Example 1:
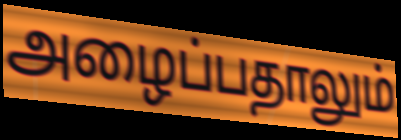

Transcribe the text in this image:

அழைப்பதாலும்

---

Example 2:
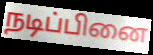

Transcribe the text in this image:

நடிப்பினை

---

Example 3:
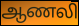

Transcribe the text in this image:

ஆணலி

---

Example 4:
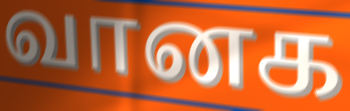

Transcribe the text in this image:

வானக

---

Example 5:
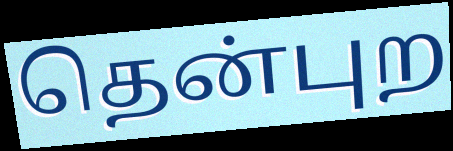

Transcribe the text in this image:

தென்புற